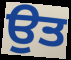
ਉਤ